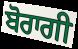
ਬੋਰਾਗੀ